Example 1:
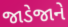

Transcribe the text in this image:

જાડેજાને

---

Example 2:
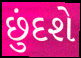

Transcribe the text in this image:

છુંદશે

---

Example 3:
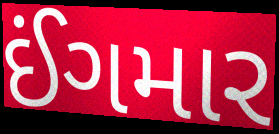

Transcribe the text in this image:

ઈંગમાર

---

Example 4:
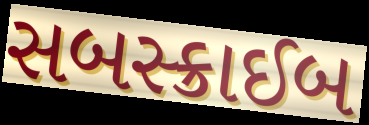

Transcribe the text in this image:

સબસ્ક્રાઈબ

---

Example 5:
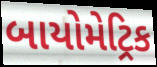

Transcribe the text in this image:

બાયોમેટ્રિક